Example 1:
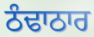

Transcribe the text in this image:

ਠੰਢਾਠਾਰ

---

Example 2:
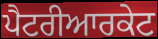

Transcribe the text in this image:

ਪੈਟਰੀਆਰਕੇਟ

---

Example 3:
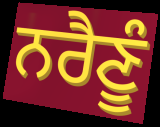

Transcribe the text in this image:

ਨਰੈਣੂੰ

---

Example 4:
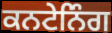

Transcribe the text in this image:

ਕਨਟੇਨਿੰਗ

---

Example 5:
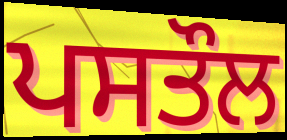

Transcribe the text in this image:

ਪਸਤੌਲ